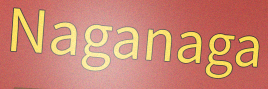
Naganaga